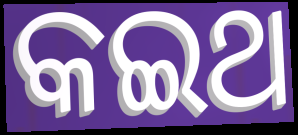
କଇଥ